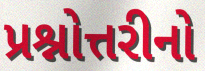
પ્રશ્નોત્તરીનો